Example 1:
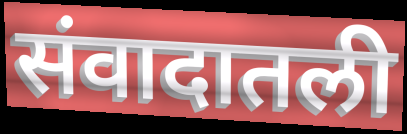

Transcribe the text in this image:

संवादातली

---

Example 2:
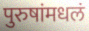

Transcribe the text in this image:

पुरुषांमधलं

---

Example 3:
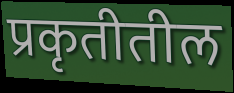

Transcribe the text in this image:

प्रकृतीतील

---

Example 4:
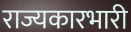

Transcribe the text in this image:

राज्यकारभारी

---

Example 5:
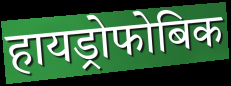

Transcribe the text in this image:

हायड्रोफोबिक